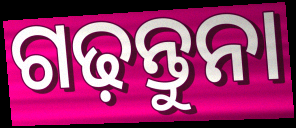
ଗଢ଼ନ୍ତୁନା